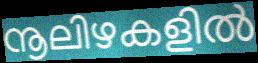
നൂലിഴകളിൽ